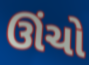
ઊંચો